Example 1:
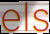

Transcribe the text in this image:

els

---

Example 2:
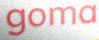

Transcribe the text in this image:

goma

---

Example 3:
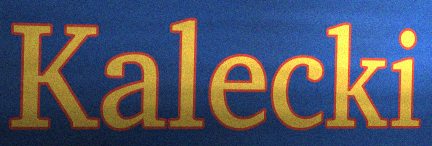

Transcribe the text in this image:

Kalecki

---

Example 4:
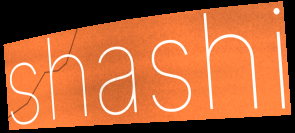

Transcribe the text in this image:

shashi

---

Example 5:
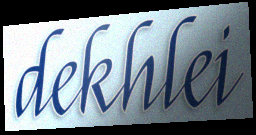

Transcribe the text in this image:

dekhlei